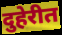
दुहेरीत